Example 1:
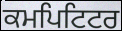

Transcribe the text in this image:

ਕਮਪਿਟਿਟਰ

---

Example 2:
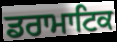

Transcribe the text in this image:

ਡਰਾਮਾਟਿਕ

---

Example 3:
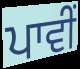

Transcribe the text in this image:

ਪਾਵੀਂ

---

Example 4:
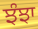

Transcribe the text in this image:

ਝੰਝਾ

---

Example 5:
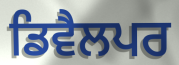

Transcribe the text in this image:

ਡਿਵੈਲਪਰ